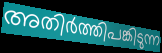
അതിർത്തിപങ്കിടുന്ന